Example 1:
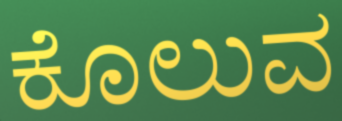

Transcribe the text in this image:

ಕೊಲುವ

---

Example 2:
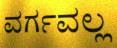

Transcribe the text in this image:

ವರ್ಗವಲ್ಲ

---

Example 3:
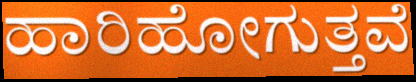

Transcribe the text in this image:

ಹಾರಿಹೋಗುತ್ತವೆ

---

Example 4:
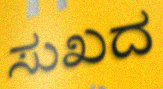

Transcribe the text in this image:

ಸುಖದ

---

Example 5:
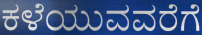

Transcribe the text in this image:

ಕಳೆಯುವವರೆಗೆ